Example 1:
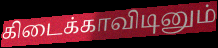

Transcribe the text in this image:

கிடைக்காவிடினும்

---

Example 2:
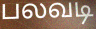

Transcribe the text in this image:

பலவடி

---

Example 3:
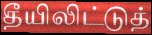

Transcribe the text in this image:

தீயிலிட்டுத்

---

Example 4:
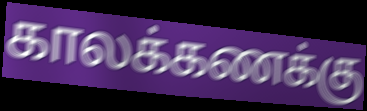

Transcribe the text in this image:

காலக்கணக்கு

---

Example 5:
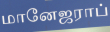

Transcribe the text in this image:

மானேஜராப்